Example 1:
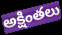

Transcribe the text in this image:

అక్షింతలు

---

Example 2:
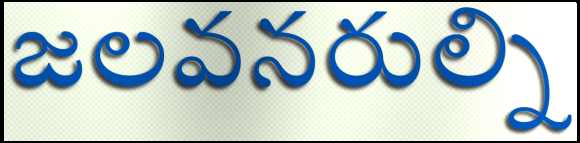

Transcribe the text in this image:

జలవనరుల్ని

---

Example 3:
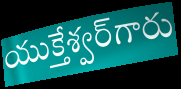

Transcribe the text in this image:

యుక్తేశ్వర్‌గారు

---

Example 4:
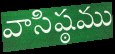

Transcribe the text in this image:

వాసిష్ఠము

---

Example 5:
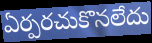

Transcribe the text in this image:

ఏర్పరచుకొనలేదు